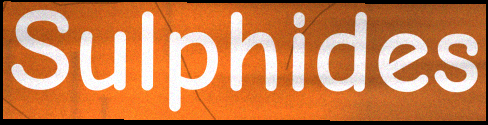
Sulphides